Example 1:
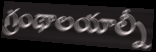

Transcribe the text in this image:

గ్రంథాలయాల్నీ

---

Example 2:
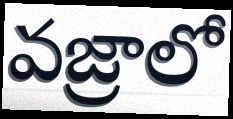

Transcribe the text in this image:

వజ్రాలో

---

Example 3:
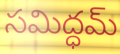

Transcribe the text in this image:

సమిద్ధమ్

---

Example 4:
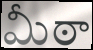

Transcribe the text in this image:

మీఠా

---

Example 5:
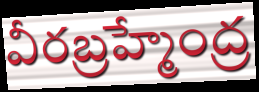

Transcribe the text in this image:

వీరబ్రహ్మేంద్ర